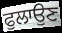
ਫੁਲਾਉਣ